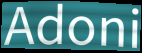
Adoni